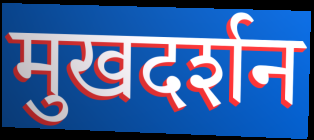
मुखदर्शन